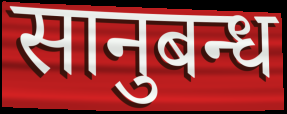
सानुबन्ध